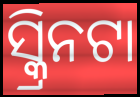
ସ୍କ୍ରିନଟା